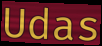
Udas